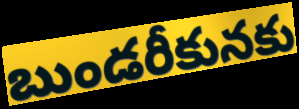
బుండరీకునకు